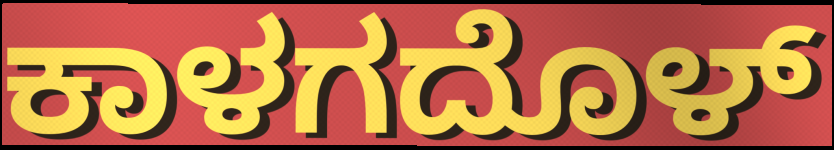
ಕಾಳಗದೊಳ್